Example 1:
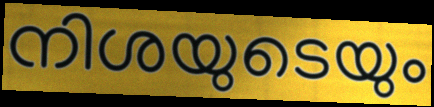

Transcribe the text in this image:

നിശയുടെയും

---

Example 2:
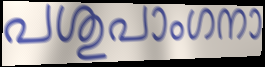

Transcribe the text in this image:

പശുപാംഗനാ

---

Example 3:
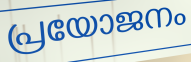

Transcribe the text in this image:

പ്രയോജനം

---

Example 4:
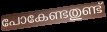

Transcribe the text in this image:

പോകേണ്ടതുണ്ട്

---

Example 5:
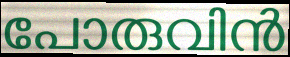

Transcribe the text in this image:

പോരുവിൻ